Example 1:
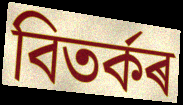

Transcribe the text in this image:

বিতৰ্কৰ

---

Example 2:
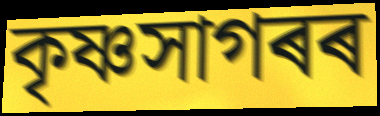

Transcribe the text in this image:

কৃষ্ণসাগৰৰ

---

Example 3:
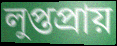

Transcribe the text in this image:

লুপ্তপ্ৰায়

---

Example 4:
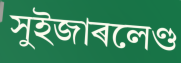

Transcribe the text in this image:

সুইজাৰলেণ্ড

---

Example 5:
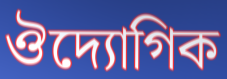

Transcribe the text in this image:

ঔদ্যোগিক